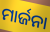
ମାର୍ଜନା